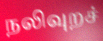
நலிவுறச்